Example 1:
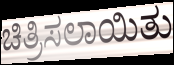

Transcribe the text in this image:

ಚಿತ್ರಿಸಲಾಯಿತು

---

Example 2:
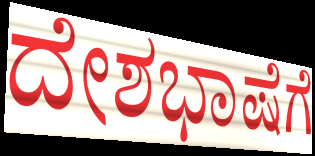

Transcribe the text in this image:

ದೇಶಭಾಷೆಗೆ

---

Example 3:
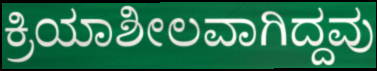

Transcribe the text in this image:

ಕ್ರಿಯಾಶೀಲವಾಗಿದ್ದವು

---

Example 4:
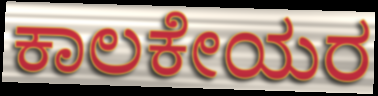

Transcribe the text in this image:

ಕಾಲಕೇಯರ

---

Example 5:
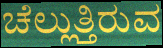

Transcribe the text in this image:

ಚೆಲ್ಲುತ್ತಿರುವ